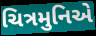
ચિત્રમુનિએ